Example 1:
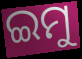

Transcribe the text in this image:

ଇମୁ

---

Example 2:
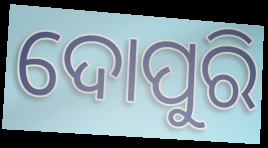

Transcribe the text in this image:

ଦୋପୁରି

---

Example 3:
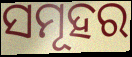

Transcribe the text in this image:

ସମୂହର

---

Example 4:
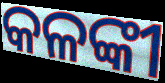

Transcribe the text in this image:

କଳଙ୍କୀ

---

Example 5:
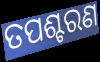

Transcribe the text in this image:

ତପଶ୍ଚରଣ